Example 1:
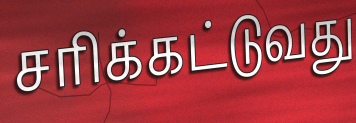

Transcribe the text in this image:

சரிக்கட்டுவது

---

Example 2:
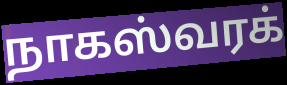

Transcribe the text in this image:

நாகஸ்வரக்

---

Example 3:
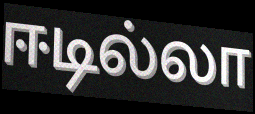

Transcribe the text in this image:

ஈடில்லா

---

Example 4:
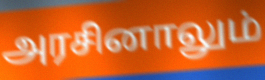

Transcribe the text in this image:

அரசினாலும்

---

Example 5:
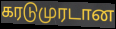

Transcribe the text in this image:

கரடுமுரடான